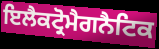
ਇਲੈਕਟ੍ਰੋਮੈਗਨੈਟਿਕ